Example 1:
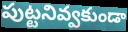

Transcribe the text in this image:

పుట్టనివ్వకుండా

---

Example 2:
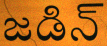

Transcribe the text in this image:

జడిన్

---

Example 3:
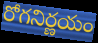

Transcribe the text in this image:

రోగనిర్ణయం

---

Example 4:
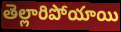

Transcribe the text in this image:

తెల్లారిపోయాయి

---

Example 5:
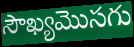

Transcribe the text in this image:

సౌఖ్యమొసగు